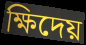
ক্ষিদেয়